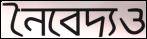
নৈবেদ্যও